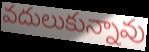
వదులుకున్నావు